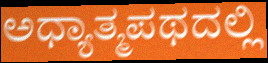
ಅಧ್ಯಾತ್ಮಪಥದಲ್ಲಿ